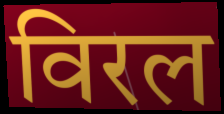
विरल